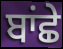
ਬਾਂਛੇ